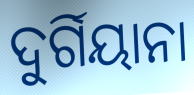
ଦୁର୍ଗିୟାନା